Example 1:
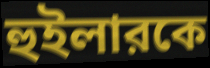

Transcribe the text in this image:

হুইলারকে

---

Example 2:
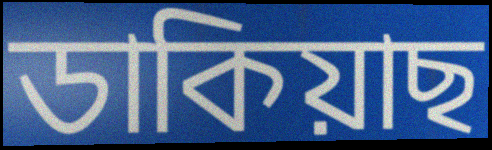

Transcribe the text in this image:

ডাকিয়াছ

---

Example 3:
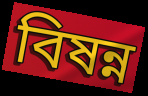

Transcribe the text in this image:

বিষন্ন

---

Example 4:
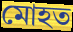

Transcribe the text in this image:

মোহত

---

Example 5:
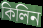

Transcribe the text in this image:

কিলিন